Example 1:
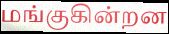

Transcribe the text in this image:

மங்குகின்றன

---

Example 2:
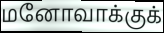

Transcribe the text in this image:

மனோவாக்குக்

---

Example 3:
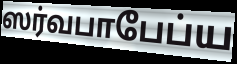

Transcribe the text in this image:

ஸர்வபாபேப்ய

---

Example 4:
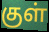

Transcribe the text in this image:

குள்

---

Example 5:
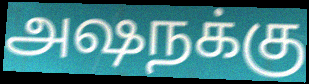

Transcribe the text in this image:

அஷநக்கு